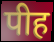
पीह